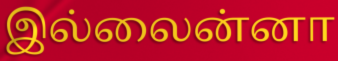
இல்லைன்னா